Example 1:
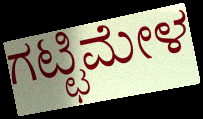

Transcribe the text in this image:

ಗಟ್ಟಿಮೇಳ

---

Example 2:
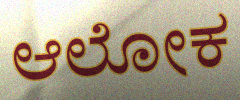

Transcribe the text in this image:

ಆಲೋಕ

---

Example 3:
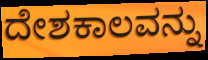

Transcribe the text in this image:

ದೇಶಕಾಲವನ್ನು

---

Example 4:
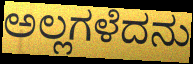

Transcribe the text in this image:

ಅಲ್ಲಗಳೆದನು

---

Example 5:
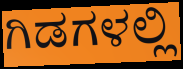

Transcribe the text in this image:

ಗಿಡಗಳಲ್ಲಿ